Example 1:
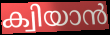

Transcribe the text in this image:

ക്വിയാൻ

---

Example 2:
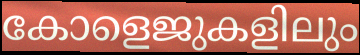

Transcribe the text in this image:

കോളെജുകളിലും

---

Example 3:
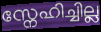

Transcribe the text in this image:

സ്നേഹിച്ചില്ല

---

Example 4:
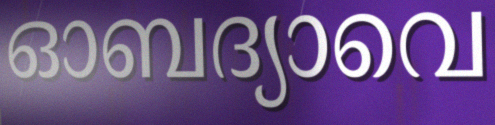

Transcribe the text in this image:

ഓബദ്യാവെ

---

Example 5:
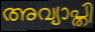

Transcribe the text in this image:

അവ്യാപ്തി